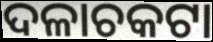
ଦଳାଚକଟା